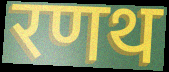
रणथ